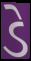
ડે